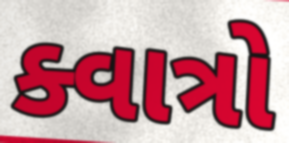
ક્વાત્રો